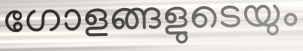
ഗോളങ്ങളുടെയും